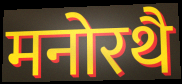
मनोरथै